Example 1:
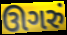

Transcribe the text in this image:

ઊગરું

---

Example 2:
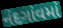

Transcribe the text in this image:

નંદગાંવમાં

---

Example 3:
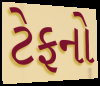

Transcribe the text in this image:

ટેફનો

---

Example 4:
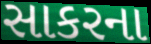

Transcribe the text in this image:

સાકરના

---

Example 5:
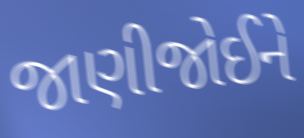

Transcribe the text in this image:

જાણીજોઈને